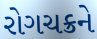
રોગચક્રને